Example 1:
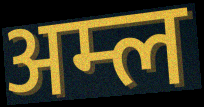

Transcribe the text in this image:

अम्ल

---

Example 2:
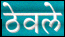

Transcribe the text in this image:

ठेवले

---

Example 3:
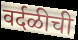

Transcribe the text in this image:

वर्दळीची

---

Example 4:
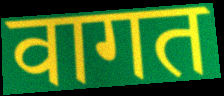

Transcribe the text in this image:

वागत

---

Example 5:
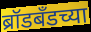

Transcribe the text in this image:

ब्रॉडबँडच्या